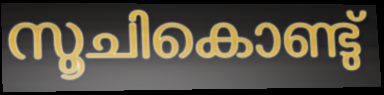
സൂചികൊണ്ടു്